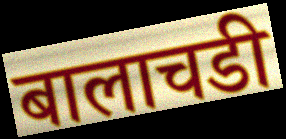
बालाचडी